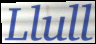
Llull